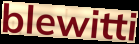
blewitti